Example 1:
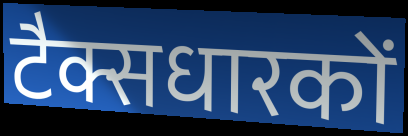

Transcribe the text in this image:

टैक्सधारकों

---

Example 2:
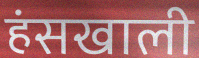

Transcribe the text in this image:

हंसखाली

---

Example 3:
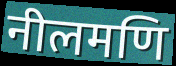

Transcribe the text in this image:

नीलमणि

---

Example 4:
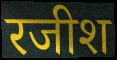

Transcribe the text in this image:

रजीश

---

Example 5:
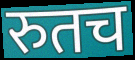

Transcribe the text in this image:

रुतच